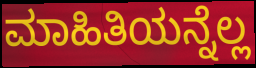
ಮಾಹಿತಿಯನ್ನೆಲ್ಲ